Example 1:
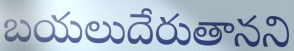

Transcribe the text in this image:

బయలుదేరుతానని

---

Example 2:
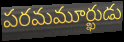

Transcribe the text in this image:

పరమమూర్ఖుడు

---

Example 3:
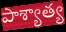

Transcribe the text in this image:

పాశ్యాత్య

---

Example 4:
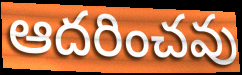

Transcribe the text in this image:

ఆదరించవు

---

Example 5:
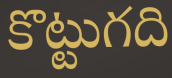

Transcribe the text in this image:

కొట్టుగది